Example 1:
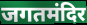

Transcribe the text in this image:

जगतमंदिर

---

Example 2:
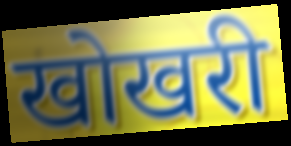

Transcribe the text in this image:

खोखरी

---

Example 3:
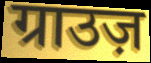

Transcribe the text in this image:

ग्राउज़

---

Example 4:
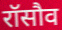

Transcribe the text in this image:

रॉसौव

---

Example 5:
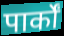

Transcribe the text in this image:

पार्कों